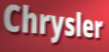
Chrysler